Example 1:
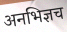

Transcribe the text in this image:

अनभिज्ञच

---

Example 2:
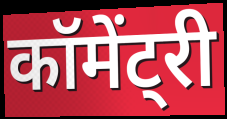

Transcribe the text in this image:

कॉमेंट्री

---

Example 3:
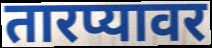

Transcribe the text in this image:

तारप्यावर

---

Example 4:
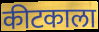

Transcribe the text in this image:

कीटकाला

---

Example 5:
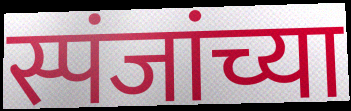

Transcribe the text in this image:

स्पंजांच्या